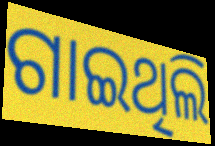
ଗାଇଥିଲି